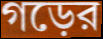
গড়ের